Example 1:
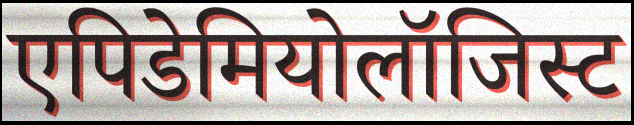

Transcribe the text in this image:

एपिडेमियोलॉजिस्ट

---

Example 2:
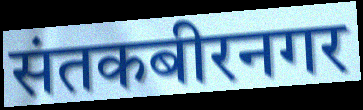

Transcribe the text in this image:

संतकबीरनगर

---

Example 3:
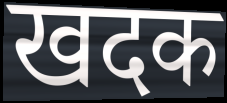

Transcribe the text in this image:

खदक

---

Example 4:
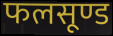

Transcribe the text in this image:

फलसूण्ड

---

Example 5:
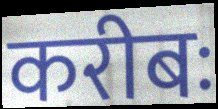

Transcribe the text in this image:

करीबः